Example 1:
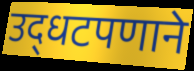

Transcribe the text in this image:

उद्धटपणाने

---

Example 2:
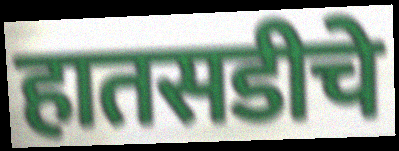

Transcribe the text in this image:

हातसडीचे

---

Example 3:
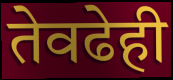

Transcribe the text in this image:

तेवढेही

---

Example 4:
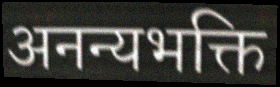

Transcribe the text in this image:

अनन्यभक्ति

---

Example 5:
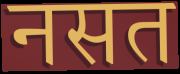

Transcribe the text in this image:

नसत